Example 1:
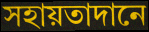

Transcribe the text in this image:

সহায়তাদানে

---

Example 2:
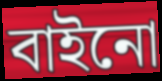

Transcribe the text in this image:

বাইনো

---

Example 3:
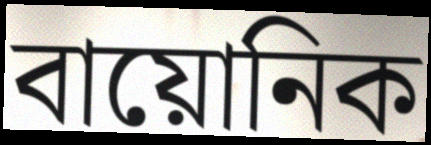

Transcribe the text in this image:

বায়োনিক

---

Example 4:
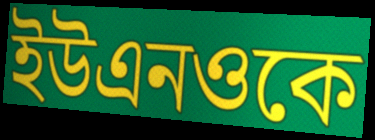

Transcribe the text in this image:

ইউএনওকে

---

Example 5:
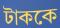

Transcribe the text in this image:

টাককে